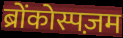
ब्रोंकोस्पज़म